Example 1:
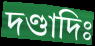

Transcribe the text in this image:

দণ্ডাদিঃ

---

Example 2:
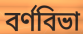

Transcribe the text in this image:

বর্ণবিভা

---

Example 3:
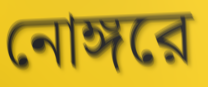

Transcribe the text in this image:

নোঙ্গরে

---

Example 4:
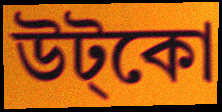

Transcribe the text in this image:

উট্কো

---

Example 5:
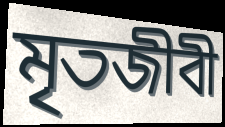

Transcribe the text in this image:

মৃতজীবী